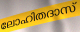
ലോഹിതദാസ്